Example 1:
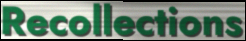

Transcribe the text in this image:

Recollections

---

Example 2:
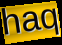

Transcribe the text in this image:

haq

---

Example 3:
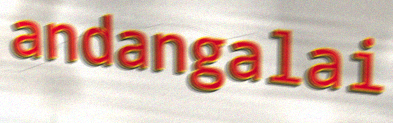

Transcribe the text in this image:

andangalai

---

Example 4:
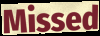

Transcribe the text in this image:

Missed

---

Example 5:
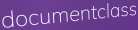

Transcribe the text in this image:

documentclass